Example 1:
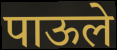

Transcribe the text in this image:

पाऊले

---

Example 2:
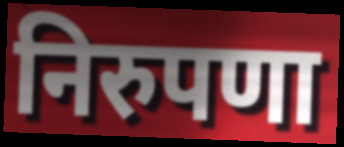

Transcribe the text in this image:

निरुपणा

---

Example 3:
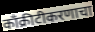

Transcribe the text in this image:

काँक्रीटीकरणाचा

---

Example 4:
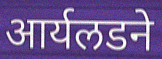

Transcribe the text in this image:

आर्यलडने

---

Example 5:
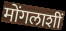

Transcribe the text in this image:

मोंगलाशीं